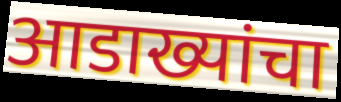
आडाख्यांचा